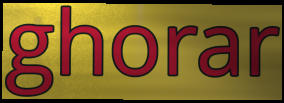
ghorar